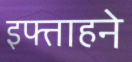
इफ्ताहने